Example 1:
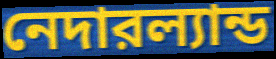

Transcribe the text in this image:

নেদারল্যান্ড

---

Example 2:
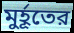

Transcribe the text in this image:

মুর্হূতের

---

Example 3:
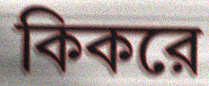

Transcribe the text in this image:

কিকরে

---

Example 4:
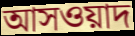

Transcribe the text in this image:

আসওয়াদ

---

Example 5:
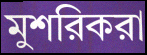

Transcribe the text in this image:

মুশরিকরা